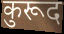
कुरूद